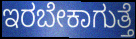
ಇರಬೇಕಾಗುತ್ತೆ